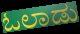
ಓಲಾಡು